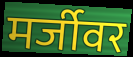
मर्जीवर